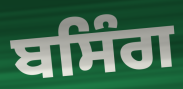
ਬਸਿੰਗ